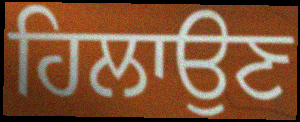
ਹਿਲਾਉਣ